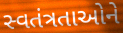
સ્વતંત્રતાઓને